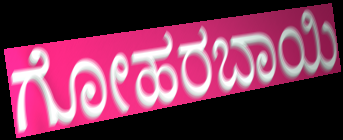
ಗೋಹರಬಾಯಿ